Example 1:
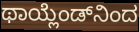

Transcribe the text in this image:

ಥಾಯ್ಲೆಂಡ್‌ನಿಂದ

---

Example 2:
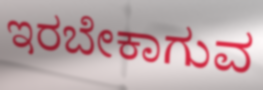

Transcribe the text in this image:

ಇರಬೇಕಾಗುವ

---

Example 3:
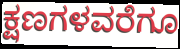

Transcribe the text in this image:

ಕ್ಷಣಗಳವರೆಗೂ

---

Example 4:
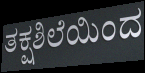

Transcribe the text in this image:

ತಕ್ಷಶಿಲೆಯಿಂದ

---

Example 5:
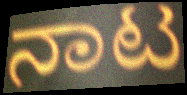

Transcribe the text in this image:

ನಾಟ